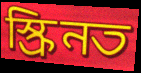
স্ক্ৰিনত